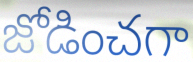
జోడించగా